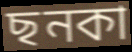
ছনকা